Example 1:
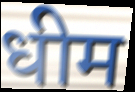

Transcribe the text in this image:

धीम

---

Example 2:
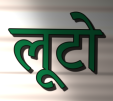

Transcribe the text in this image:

लूटो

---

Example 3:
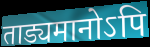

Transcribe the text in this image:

ताड्यमानोऽपि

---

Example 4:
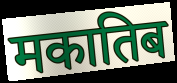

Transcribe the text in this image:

मकातिब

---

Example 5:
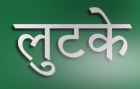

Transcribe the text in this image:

लुटके